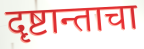
दृष्टान्ताचा